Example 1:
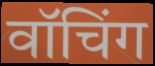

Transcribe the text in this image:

वॉचिंग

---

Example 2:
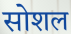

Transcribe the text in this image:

सोशल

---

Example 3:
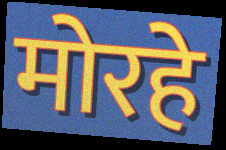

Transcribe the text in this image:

मोरहे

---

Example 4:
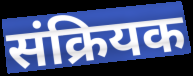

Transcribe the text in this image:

संक्रियक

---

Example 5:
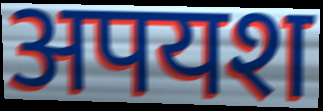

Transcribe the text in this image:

अपयश